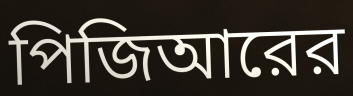
পিজিআরের